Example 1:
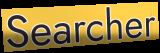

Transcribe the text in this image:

Searcher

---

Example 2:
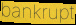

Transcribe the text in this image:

bankrupt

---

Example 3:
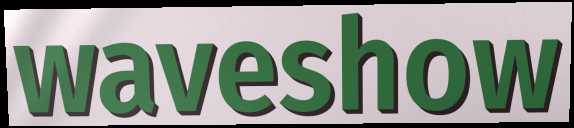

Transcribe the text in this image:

waveshow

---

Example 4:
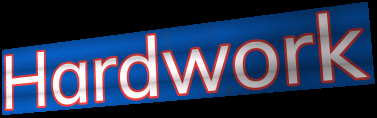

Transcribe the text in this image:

Hardwork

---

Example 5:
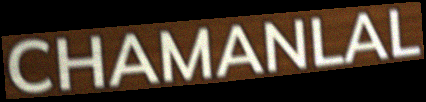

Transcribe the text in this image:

CHAMANLAL